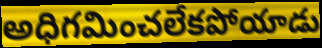
అధిగమించలేకపోయాడు